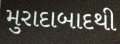
મુરાદાબાદથી